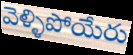
వెళ్ళిపోయేరు